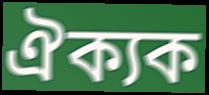
ঐক্যক